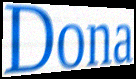
Dona